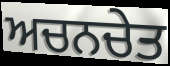
ਅਚਨਚੇਤ